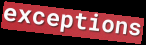
exceptions